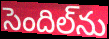
సెందిల్‌ను